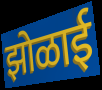
झोळाई